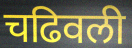
चढिवली